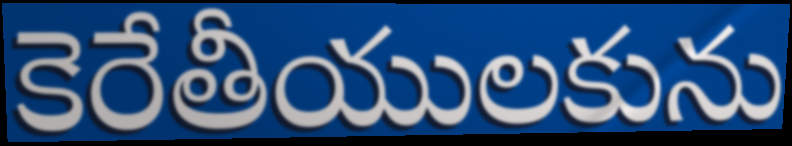
కెరేతీయులకును